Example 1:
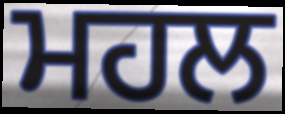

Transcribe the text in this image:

ਮਹਲ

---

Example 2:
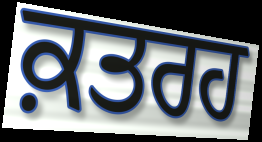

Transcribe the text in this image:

ਕ਼ਤਰਹ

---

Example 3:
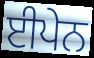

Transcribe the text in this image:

ਈਪੇਨ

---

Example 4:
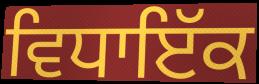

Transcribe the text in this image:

ਵਿਧਾਇੱਕ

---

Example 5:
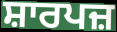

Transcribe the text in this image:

ਸ਼ਾਰਪਜ਼